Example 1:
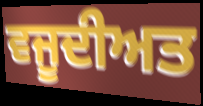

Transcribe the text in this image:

ਵਜੂਦੀਅਤ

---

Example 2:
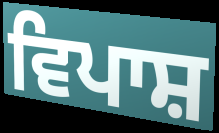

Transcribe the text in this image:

ਵਿਪਾਸ਼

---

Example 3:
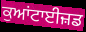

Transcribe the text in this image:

ਕੁਆਂਟਾਈਜ਼ਡ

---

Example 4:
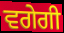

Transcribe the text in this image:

ਵਗੇਗੀ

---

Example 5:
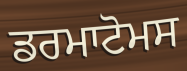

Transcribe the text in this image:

ਡਰਮਾਟੋਮਸ